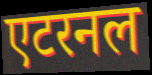
एटरनल